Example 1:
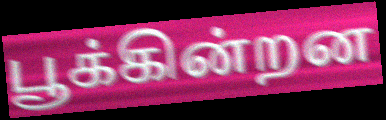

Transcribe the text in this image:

பூக்கின்றன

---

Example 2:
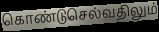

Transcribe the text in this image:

கொண்டுசெல்வதிலும்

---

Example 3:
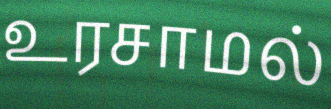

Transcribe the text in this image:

உரசாமல்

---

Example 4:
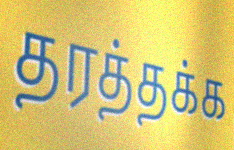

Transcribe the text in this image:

தரத்தக்க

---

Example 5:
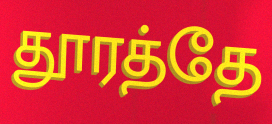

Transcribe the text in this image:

தூரத்தே